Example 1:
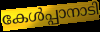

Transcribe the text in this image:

കേൾപ്പാനാടി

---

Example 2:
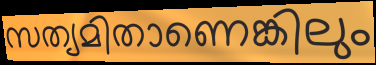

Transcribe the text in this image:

സത്യമിതാണെങ്കിലും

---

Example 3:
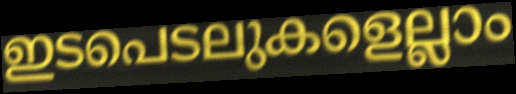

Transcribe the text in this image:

ഇടപെടലുകളെല്ലാം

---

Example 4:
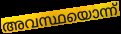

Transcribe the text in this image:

അവസ്ഥയൊന്ന്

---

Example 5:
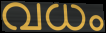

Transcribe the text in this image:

വധം